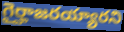
గైర్హాజరయ్యారని